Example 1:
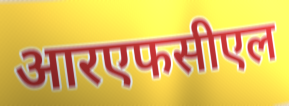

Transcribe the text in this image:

आरएफसीएल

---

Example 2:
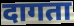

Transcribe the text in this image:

दागता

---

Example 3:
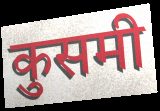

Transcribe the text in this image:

कुसमी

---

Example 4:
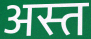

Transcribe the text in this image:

अस्त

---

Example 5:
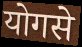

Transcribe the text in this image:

योगसे